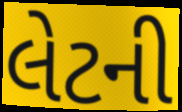
લેટની